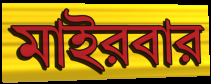
মাইরবার